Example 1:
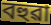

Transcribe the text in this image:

বহুৱা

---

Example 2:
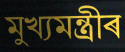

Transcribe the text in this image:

মুখ্যমন্ত্ৰীৰ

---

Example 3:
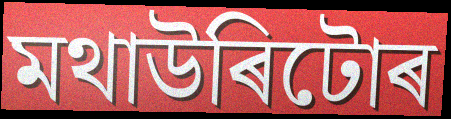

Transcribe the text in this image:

মথাউৰিটোৰ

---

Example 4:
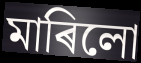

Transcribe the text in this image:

মাৰিলো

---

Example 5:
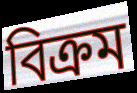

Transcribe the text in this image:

বিক্ৰম